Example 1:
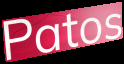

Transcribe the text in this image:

Patos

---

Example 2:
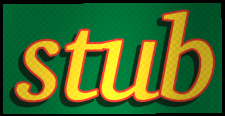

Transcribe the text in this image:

stub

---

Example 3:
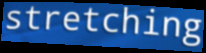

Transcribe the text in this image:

stretching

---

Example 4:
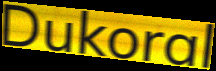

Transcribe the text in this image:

Dukoral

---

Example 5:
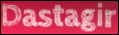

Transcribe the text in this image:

Dastagir